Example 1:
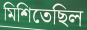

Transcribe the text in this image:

মিশিতেছিল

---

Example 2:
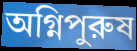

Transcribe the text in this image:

অগ্নিপুরুষ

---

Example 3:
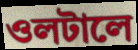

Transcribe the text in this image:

ওলটালে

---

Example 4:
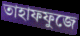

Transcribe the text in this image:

তাহাফফুজে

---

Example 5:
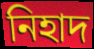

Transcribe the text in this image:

নিহাদ